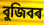
বুজিবৰ